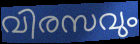
വിരസവും